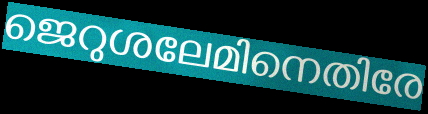
ജെറുശലേമിനെതിരേ